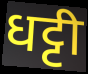
धट्टी